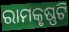
ରାମକୃଷ୍ଣଟି